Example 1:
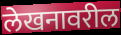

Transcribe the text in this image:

लेखनावरील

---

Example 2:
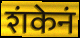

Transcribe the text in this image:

शंकेनं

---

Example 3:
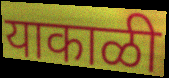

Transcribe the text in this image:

याकाळी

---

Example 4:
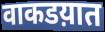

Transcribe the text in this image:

वाकडय़ात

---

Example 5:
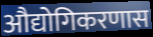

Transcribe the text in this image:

औद्योगिकरणास